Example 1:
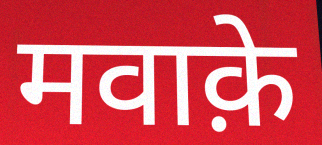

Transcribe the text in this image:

मवाक़े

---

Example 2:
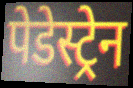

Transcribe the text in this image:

पेडेस्ट्रेन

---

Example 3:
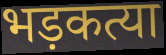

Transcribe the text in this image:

भड़कत्या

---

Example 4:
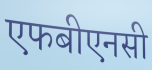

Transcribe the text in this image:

एफबीएनसी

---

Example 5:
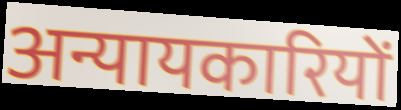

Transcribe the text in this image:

अन्यायकारियों